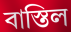
বাস্তিল